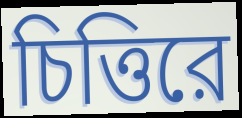
চিত্তিরে